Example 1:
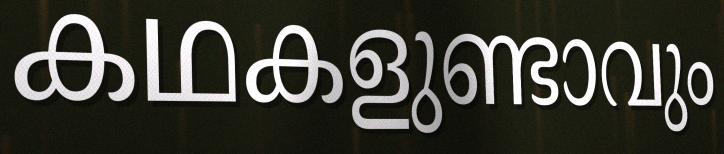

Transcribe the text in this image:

കഥകളുണ്ടാവും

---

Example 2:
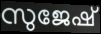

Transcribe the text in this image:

സുജേഷ്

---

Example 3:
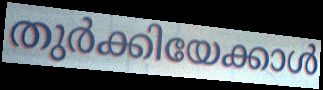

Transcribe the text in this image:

തുർക്കിയേക്കാൾ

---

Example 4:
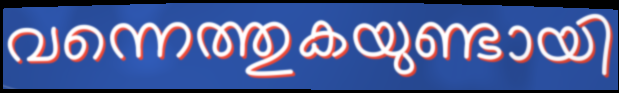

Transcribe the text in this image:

വന്നെത്തുകയുണ്ടായി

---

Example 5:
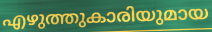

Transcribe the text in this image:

എഴുത്തുകാരിയുമായ